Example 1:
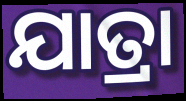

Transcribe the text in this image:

ଯାତ୍ରା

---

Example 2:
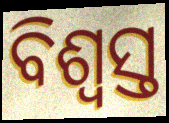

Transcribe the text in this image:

ବିଶ୍ୱସ୍ତ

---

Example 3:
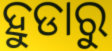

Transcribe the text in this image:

ହୁଡାରୁ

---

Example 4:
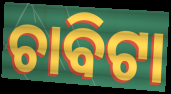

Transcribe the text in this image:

ଚାବିଟା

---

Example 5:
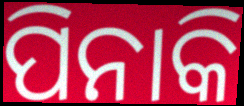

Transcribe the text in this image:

ପିନାକି